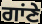
ਗਾਂਣੇ